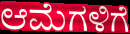
ಆಮೆಗಳಿಗೆ